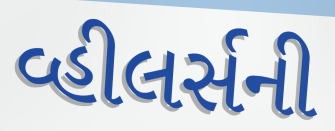
વ્હીલર્સની